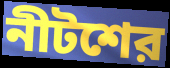
নীটশের